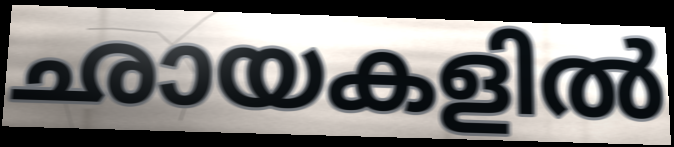
ഛായകളിൽ